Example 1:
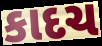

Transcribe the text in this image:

કાદચ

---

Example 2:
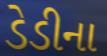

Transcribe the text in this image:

ડેડીના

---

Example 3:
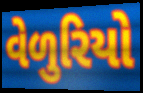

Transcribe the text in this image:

વેળુરિયો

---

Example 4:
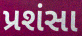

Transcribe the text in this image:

પ્રશંસા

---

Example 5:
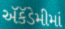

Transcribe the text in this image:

ઍકૅડેમીમાં